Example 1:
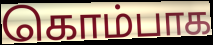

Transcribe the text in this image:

கொம்பாக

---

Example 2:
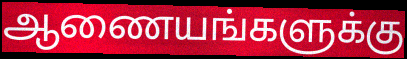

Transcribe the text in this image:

ஆணையங்களுக்கு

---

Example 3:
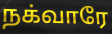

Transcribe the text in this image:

நக்வாரே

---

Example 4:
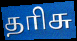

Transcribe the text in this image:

தரிசு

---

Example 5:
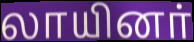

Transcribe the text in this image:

லாயினர்